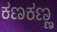
ಕಣಕಣ್ಣ